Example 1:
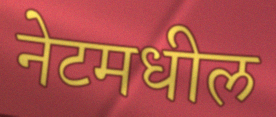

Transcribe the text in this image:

नेटमधील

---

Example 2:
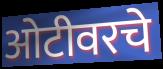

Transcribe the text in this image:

ओटीवरचे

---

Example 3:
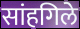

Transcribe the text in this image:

सांहगिले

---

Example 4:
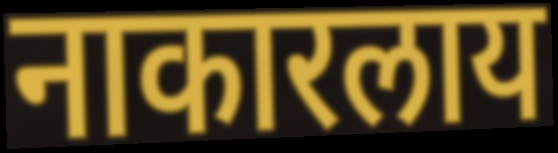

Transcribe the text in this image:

नाकारलाय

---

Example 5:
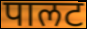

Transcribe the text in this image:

पालट